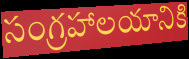
సంగ్రహాలయానికి